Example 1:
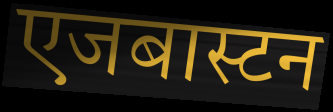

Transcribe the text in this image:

एजबास्टन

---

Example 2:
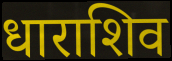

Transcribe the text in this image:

धाराशिव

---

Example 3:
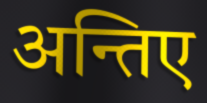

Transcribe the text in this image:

अन्तिए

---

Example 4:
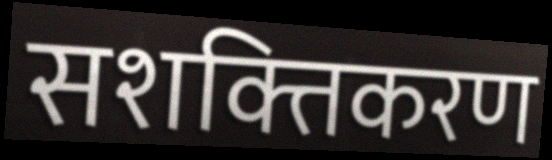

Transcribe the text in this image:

सशक्तिकरण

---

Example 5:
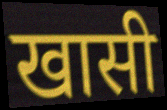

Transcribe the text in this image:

खासी